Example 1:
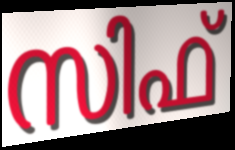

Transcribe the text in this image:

സിഫ്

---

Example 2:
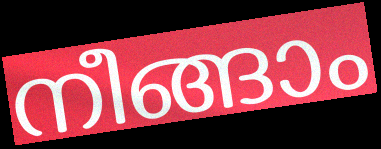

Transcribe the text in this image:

നീങ്ങാം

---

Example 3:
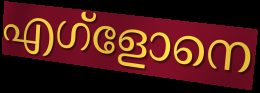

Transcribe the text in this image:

എഗ്ളോനെ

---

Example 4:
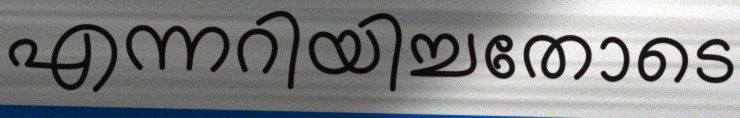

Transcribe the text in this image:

എന്നറിയിച്ചതോടെ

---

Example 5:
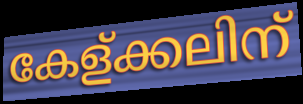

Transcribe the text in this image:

കേള്ക്കലിന്